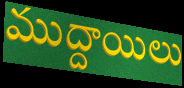
ముద్దాయిలు